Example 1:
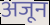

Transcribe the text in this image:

अजून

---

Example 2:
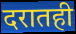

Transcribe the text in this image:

दरातही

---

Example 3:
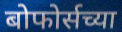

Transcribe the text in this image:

बोफोर्सच्या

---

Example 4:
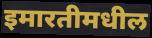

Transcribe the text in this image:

इमारतीमधील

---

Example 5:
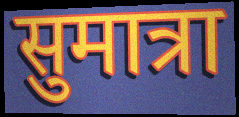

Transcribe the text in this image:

सुमात्रा